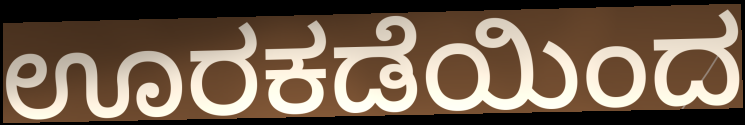
ಊರಕಡೆಯಿಂದ